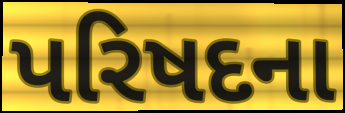
પરિષદના